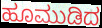
ಹೂಮುಡಿದ